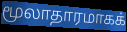
மூலாதாரமாகக்